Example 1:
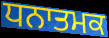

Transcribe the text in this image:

ਧਨਾਤਮਕ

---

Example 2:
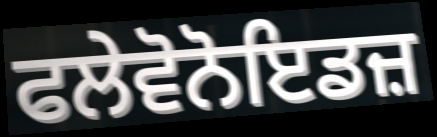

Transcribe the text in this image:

ਫਲੇਵੋਨੋਇਡਜ਼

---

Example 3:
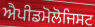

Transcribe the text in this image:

ਐਪੀਡਮੋਲੋਜਿਸਟ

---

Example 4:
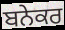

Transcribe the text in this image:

ਬਨੇਕਰ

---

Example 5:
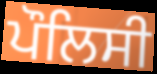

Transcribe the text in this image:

ਪੌਲਿਸੀ